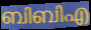
ബിബിഎ